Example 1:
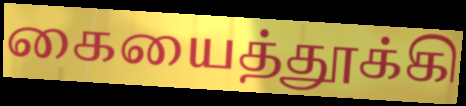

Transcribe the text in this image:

கையைத்தூக்கி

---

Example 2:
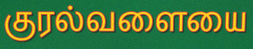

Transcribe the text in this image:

குரல்வளையை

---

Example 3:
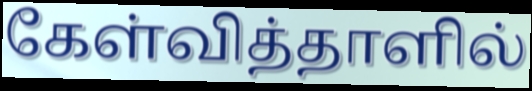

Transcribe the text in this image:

கேள்வித்தாளில்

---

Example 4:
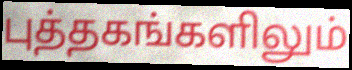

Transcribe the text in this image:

புத்தகங்களிலும்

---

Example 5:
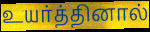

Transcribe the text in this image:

உயர்த்தினால்